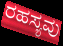
ರಹಸ್ಯವು